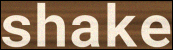
shake